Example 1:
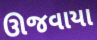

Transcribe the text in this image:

ઊજવાયા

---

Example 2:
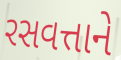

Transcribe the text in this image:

રસવત્તાને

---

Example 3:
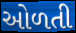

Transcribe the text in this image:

ઓળતી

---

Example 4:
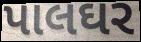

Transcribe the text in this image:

પાલઘર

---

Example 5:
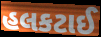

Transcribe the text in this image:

હલકટાઈ